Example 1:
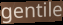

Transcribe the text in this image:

gentile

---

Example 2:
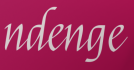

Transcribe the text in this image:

ndenge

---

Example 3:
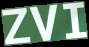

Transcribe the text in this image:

ZVI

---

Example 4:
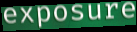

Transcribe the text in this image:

exposure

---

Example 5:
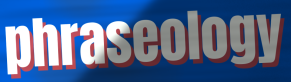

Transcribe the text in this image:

phraseology